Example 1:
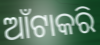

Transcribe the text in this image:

ଆଁଟାକରି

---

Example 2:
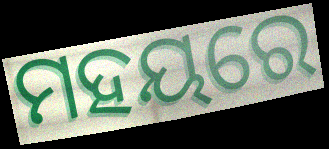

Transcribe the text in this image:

ମହୟରେ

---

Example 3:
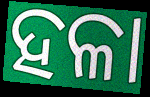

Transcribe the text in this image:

ହଳା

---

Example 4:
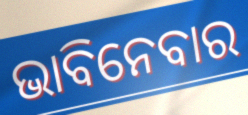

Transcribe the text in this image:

ଭାବିନେବାର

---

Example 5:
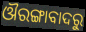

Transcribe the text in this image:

ଔରଙ୍ଗାବାଦରୁ